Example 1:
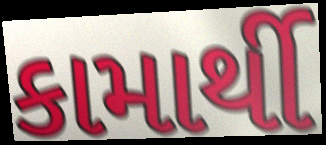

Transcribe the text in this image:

કામાર્થી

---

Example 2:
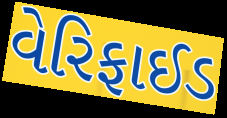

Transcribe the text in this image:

વેરિફાઈડ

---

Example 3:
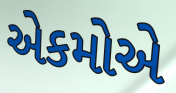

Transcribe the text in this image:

એકમોએ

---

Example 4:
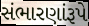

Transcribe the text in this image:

સંભારણાંરૂપે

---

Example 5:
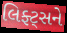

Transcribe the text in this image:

લિફ્ટ્સને